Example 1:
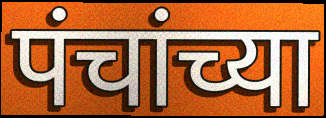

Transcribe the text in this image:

पंचांच्या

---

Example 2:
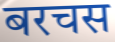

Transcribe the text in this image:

बरचस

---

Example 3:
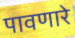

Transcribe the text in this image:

पावणारे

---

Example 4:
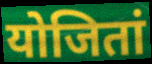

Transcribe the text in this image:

योजितां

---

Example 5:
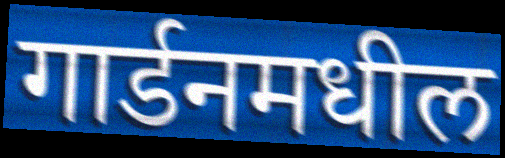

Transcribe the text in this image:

गार्डनमधील